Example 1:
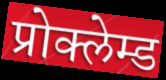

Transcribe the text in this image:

प्रोक्लेम्ड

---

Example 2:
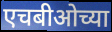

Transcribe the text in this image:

एचबीओच्या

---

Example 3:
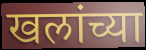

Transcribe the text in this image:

खलांच्या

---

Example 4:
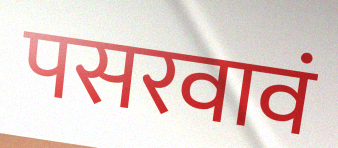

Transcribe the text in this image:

पसरवावं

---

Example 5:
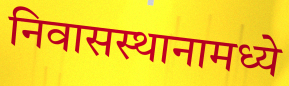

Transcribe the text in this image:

निवासस्थानामध्ये